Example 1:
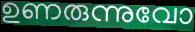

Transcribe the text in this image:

ഉണരുന്നുവോ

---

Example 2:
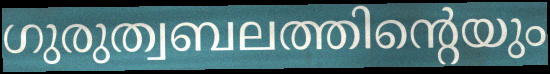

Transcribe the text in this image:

ഗുരുത്വബലത്തിന്റെയും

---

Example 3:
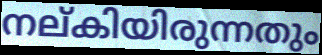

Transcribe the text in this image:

നല്കിയിരുന്നതും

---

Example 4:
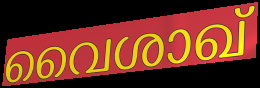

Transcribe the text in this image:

വൈശാഖ്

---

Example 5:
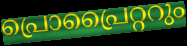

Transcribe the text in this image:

പ്രൊപ്രൈറ്ററും